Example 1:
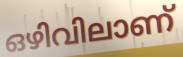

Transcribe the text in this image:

ഒഴിവിലാണ്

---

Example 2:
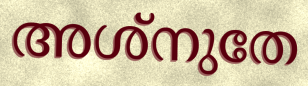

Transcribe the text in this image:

അശ്നുതേ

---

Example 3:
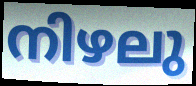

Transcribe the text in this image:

നിഴലു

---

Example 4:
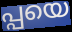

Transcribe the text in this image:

പ്പയെ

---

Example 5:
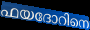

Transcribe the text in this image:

ഫയദോറിനെ